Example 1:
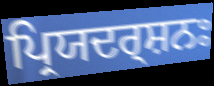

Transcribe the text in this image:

ਪ੍ਰਿਯਦਰ੍ਸ਼ਨਃ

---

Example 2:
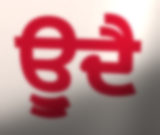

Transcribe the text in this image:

ਊੁਦੈ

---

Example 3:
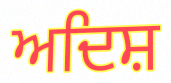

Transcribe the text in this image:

ਅਦਿਸ਼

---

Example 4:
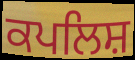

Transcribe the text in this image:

ਕਪਲਿਸ਼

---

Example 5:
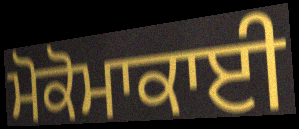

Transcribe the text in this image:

ਮੋਕੋਮਾਕਾਈ